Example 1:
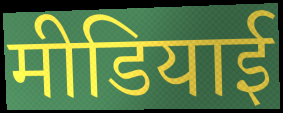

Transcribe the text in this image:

मीडियाई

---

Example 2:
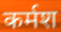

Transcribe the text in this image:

कर्मश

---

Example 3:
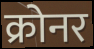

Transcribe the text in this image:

क्रोनर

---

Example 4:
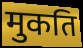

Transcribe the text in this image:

मुकति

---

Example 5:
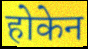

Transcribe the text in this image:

होकेन